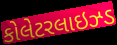
કોલેટરલાઇઝ્ડ